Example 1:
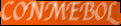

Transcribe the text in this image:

CONMEBOL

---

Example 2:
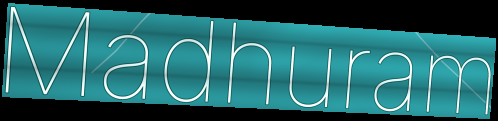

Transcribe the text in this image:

Madhuram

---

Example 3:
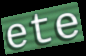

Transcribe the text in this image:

ete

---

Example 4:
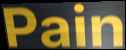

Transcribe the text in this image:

Pain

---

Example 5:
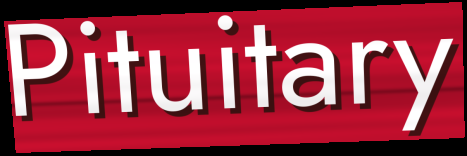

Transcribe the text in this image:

Pituitary